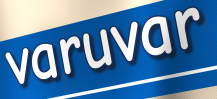
varuvar